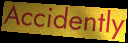
Accidently